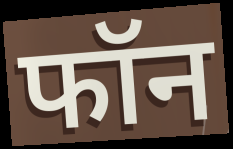
फॉन